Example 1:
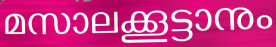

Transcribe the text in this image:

മസാലക്കൂട്ടാനും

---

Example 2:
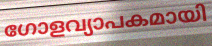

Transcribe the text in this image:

ഗോളവ്യാപകമായി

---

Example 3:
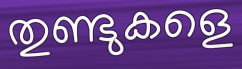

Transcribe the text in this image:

തുണ്ടുകളെ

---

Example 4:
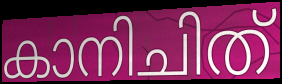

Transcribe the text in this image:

കാനിചിത്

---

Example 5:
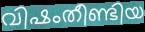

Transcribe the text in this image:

വിഷംതീണ്ടിയ